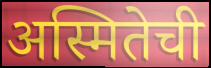
अस्मितेची